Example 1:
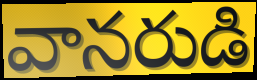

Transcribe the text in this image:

వానరుడి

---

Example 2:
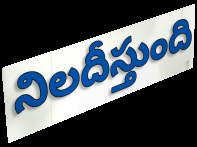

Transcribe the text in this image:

నిలదీస్తుంది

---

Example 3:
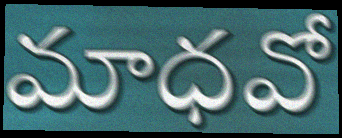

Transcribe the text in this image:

మాధవో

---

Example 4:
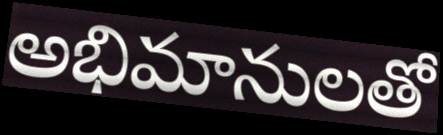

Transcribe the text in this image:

అభిమానులతో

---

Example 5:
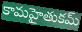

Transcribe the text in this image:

కామహైతుకమ్